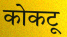
कोकटू